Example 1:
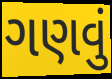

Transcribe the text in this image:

ગણવું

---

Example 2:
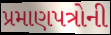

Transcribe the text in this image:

પ્રમાણપત્રોની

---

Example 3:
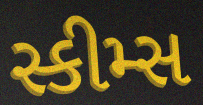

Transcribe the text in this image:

સ્કીમ્સ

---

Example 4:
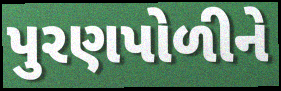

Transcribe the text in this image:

પુરણપોળીને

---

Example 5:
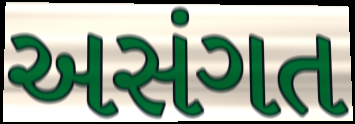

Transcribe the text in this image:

અસંગત